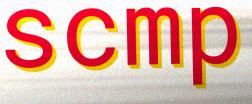
scmp